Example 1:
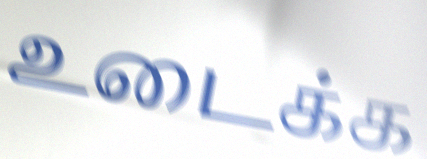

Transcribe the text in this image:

உடைக்க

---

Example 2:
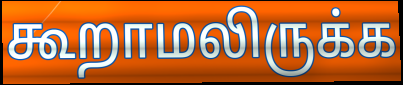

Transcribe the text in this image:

கூறாமலிருக்க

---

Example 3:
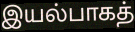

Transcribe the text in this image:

இயல்பாகத்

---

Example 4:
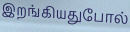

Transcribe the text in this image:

இறங்கியதுபோல்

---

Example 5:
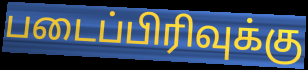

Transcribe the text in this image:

படைப்பிரிவுக்கு